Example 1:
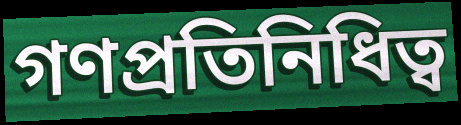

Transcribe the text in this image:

গণপ্রতিনিধিত্ব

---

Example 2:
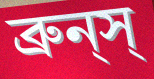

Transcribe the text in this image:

ব্রুন্‌স্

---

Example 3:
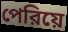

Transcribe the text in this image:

পেরিয়ে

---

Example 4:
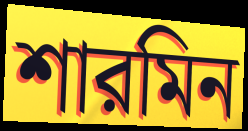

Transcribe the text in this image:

শারমিন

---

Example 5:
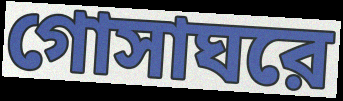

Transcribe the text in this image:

গোসাঘরে